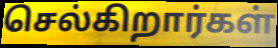
செல்கிறார்கள்